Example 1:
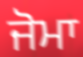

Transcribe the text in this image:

ਜੋਮਾ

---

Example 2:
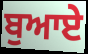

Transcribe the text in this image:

ਬੁਆਏ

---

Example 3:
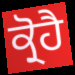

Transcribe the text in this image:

ਕ੍ਰੋਹੈ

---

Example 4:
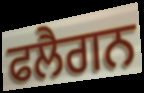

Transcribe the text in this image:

ਫਲੈਗਨ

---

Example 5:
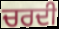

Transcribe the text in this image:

ਚਰਦੀ